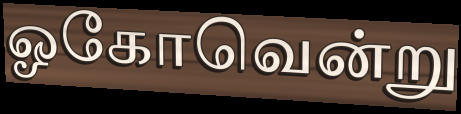
ஓகோவென்று